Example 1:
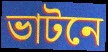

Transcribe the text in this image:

ভাটনে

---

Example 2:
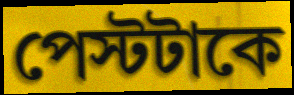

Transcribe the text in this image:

পেস্টটাকে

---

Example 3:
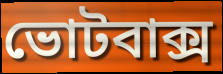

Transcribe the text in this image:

ভোটবাক্স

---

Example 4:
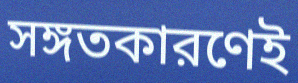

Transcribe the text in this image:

সঙ্গতকারণেই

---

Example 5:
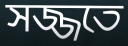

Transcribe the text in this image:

সজ্জতে